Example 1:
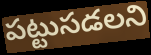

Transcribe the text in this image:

పట్టుసడలని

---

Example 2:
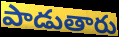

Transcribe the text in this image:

పాడుతారు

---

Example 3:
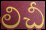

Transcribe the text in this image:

లిచీ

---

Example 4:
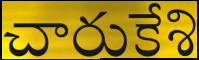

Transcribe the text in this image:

చారుకేశి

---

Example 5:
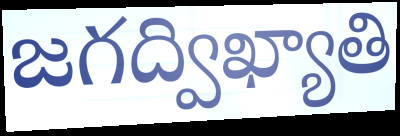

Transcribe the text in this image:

జగద్విఖ్యాతి